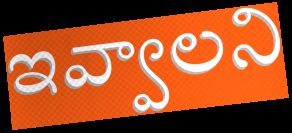
ఇవ్వాలని